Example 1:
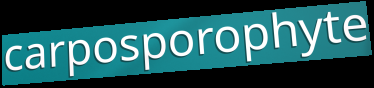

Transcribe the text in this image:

carposporophyte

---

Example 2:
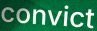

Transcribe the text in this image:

convict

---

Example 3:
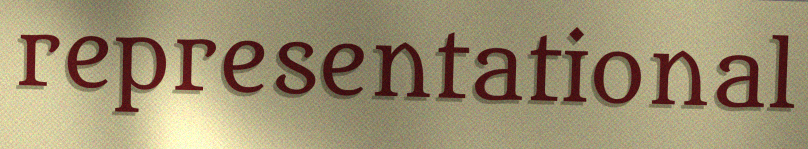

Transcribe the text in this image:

representational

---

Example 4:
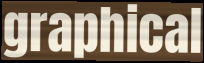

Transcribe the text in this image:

graphical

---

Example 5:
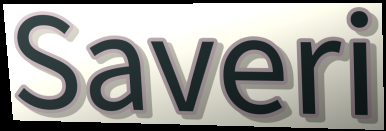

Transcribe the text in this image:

Saveri